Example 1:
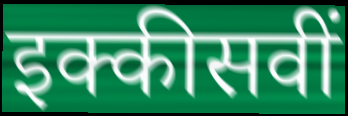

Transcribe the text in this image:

इक्कीसवीं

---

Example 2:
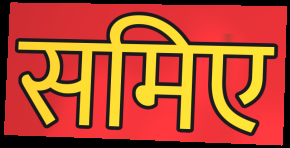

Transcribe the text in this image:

समिए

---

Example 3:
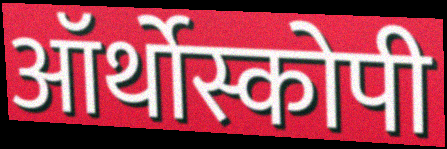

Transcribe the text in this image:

ऑर्थोस्कोपी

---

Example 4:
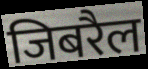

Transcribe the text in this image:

जिबरैल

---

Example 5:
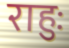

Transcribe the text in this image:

राहुः